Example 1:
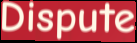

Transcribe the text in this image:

Dispute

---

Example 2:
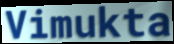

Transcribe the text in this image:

Vimukta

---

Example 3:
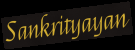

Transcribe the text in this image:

Sankrityayan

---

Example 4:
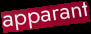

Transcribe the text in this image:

apparant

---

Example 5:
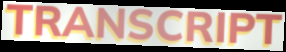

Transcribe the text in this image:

TRANSCRIPT